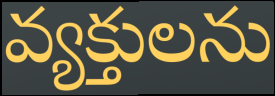
వ్యక్తులను